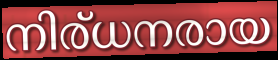
നിര്ധനരായ